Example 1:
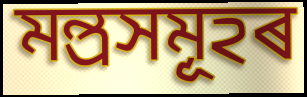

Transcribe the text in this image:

মন্ত্ৰসমূহৰ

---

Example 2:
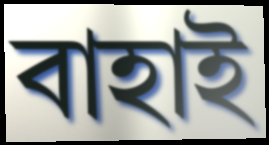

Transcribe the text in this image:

বাহাই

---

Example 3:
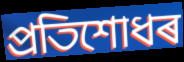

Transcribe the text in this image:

প্ৰতিশোধৰ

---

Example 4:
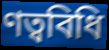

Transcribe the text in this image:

ণত্ববিধি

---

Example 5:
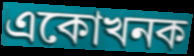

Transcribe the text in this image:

একোখনক